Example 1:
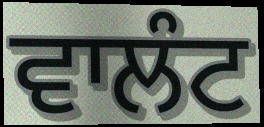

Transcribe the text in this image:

ਵਾਲੰਟ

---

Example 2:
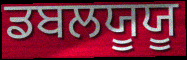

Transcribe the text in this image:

ਡਬਲਯੂਯੂ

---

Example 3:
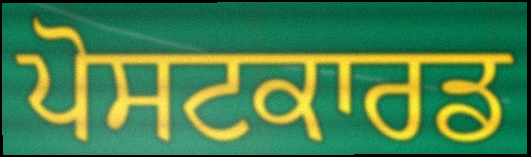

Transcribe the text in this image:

ਪੋਸਟਕਾਰਡ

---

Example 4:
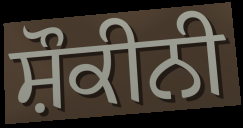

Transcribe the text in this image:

ਸ਼ੌਕੀਨੀ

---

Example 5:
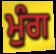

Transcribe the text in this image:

ਮੁੰਗ